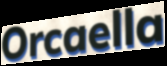
Orcaella